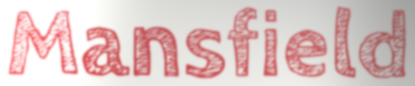
Mansfield